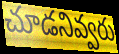
చూడనివ్వరు